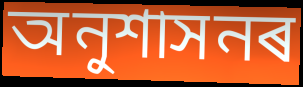
অনুশাসনৰ